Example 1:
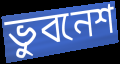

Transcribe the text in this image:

ভুবনেশ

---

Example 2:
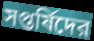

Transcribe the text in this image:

সপ্তর্ষিদের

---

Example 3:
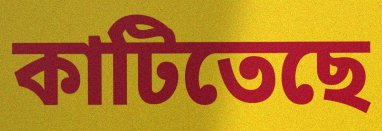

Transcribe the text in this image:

কাটিতেছে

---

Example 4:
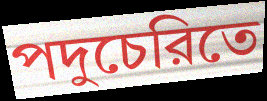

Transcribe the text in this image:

পদুচেরিতে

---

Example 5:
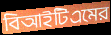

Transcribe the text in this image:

বিআইটিএমের